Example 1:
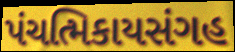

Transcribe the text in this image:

પંચત્મિકાયસંગહ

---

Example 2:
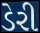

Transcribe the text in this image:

ડેરી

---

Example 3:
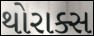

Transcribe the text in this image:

થોરાક્સ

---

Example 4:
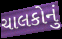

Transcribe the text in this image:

ચાલકોનું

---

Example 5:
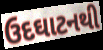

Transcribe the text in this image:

ઉદઘાટનથી